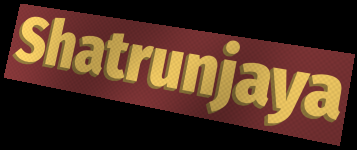
Shatrunjaya